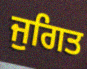
ਜੁਗਿਤ